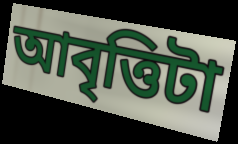
আবৃত্তিটা